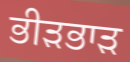
ਭੀੜਭਾੜ